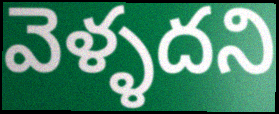
వెళ్ళదని